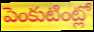
పెంకుటింట్లో